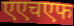
एएचएफ